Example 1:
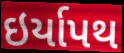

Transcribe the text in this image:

ઇર્યાપથ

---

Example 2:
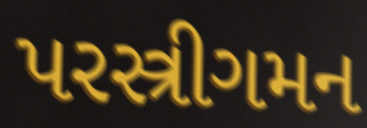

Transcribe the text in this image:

પરસ્ત્રીગમન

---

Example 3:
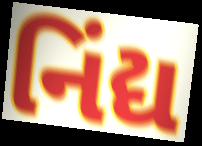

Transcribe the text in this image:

નિંદ્ય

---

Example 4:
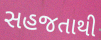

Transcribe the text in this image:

સહજતાથી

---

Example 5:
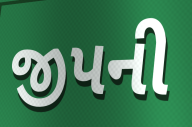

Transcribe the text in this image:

જીપની